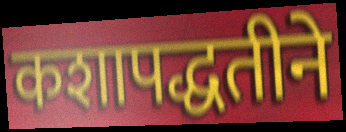
कशापद्धतीने